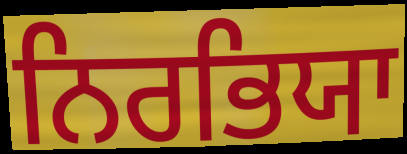
ਨਿਰਭਿਯਾ